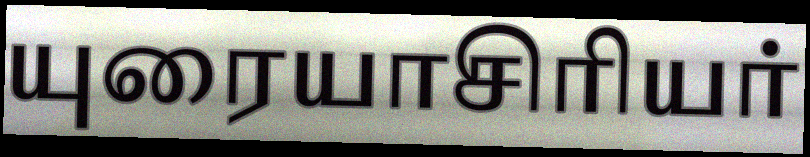
யுரையாசிரியர்